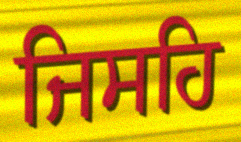
ਜਿਸਹਿ